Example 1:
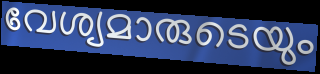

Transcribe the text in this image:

വേശ്യമാരുടെയും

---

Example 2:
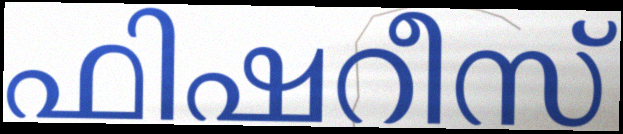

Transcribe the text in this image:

ഫിഷറീസ്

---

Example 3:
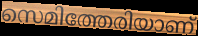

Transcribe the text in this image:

സെമിത്തേരിയാണ്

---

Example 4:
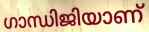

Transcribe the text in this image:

ഗാന്ധിജിയാണ്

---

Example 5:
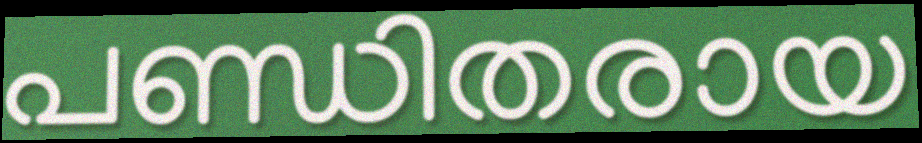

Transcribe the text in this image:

പണ്ഡിതരായ